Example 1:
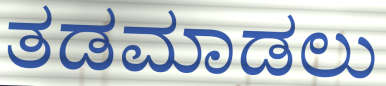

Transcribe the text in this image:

ತಡಮಾಡಲು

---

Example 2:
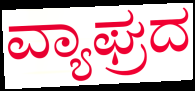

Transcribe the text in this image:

ವ್ಯಾಘ್ರದ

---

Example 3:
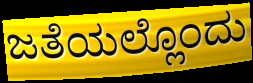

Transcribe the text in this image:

ಜತೆಯಲ್ಲೊಂದು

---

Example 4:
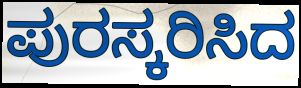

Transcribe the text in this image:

ಪುರಸ್ಕರಿಸಿದ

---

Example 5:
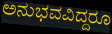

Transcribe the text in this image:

ಅನುಭವವಿದ್ದರೂ